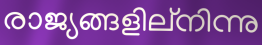
രാജ്യങ്ങളില്നിന്നു